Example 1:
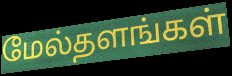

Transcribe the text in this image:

மேல்தளங்கள்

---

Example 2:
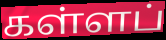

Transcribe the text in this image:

கள்ளப்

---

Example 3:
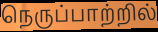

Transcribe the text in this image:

நெருப்பாற்றில்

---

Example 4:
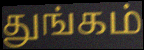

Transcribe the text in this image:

துங்கம்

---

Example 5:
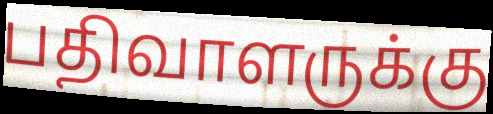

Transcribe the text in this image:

பதிவாளருக்கு